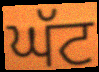
ਘੱਟ